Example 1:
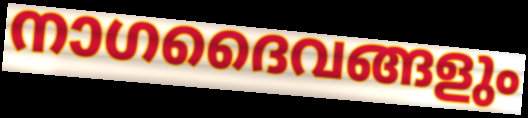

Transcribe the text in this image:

നാഗദൈവങ്ങളും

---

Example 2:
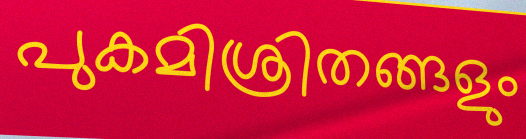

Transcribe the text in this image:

പുകമിശ്രിതങ്ങളും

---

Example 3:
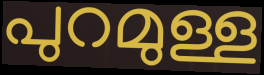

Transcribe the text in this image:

പുറമുള്ള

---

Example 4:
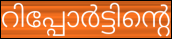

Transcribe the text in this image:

റിപ്പോർട്ടിന്റെ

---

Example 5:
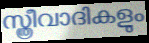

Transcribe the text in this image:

സ്ത്രീവാദികളും